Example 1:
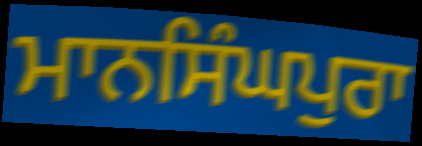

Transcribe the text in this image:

ਮਾਨਸਿੰਘਪੁਰਾ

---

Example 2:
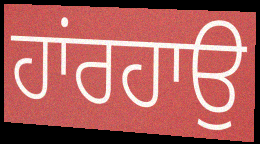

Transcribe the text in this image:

ਹਾਂਰਹਾਉ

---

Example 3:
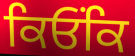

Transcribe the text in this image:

ਕਿਓਂਕਿ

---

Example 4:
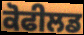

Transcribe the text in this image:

ਕੋਫੀਲਡ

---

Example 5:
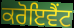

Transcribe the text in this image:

ਕਰੋਇਵੈਂਟ